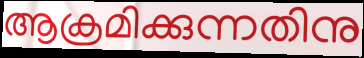
ആക്രമിക്കുന്നതിനു